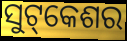
ସୁଟ୍‌କେଶର